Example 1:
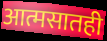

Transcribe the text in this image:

आत्मसातही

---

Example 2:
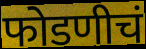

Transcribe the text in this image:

फोडणीचं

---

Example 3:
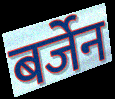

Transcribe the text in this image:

बर्जेन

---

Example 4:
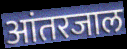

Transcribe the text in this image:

आंतरजाल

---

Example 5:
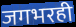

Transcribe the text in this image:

जगभरही